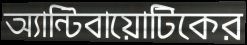
অ্যান্টিবায়োটিকের